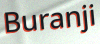
Buranji